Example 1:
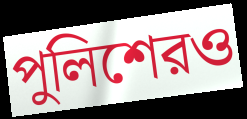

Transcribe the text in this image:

পুলিশেরও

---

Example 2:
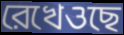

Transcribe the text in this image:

রেখেওছে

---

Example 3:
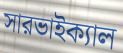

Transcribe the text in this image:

সারভাইক্যাল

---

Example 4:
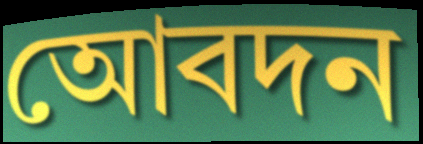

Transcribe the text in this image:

আেবদন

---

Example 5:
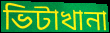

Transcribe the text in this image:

ভিটাখানা